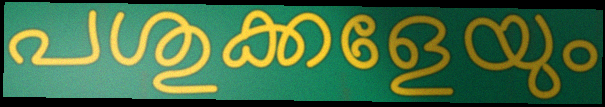
പശുക്കളേയും